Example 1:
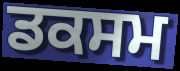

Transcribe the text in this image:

ਡਕਸਮ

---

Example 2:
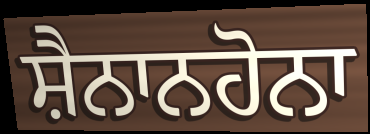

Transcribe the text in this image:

ਸ਼ੈਨਾਨਹੋਨਾ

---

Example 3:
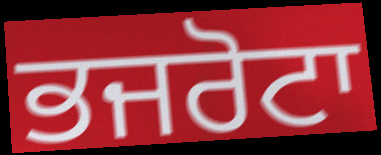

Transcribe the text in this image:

ਭਜਰੋਟਾ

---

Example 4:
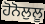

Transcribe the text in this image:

ਹੋਨੋਲੁਲੂ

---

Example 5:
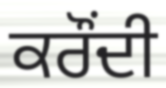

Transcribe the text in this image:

ਕਰੌਂਦੀ